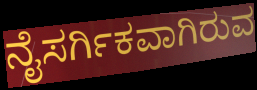
ನೈಸರ್ಗಿಕವಾಗಿರುವ